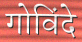
गोविंदे